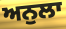
ਅਨੁਲਾ